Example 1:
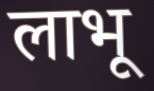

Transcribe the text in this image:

लाभू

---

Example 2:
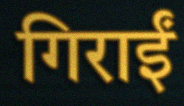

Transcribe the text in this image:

गिराईं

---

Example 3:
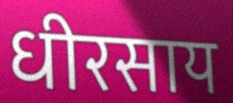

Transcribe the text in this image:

धीरसाय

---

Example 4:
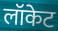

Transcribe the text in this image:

लॉकेट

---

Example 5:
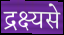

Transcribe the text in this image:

द्रक्ष्यसे